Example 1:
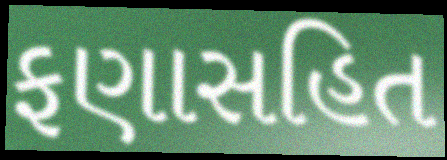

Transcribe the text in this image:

ફણાસહિત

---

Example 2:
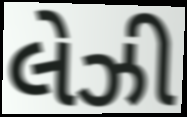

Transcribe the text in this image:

લેઝી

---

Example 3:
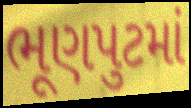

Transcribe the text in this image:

ભૂણપુટમાં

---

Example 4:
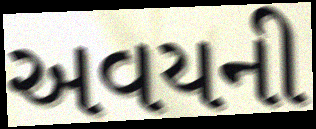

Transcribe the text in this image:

અવયની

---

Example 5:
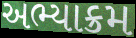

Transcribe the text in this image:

અભ્યાક્રમ